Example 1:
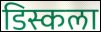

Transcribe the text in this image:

डिस्कला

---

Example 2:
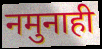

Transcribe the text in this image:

नमुनाही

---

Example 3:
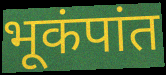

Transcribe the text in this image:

भूकंपांत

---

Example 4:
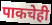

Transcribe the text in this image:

पाकचेही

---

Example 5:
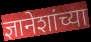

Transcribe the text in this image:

ज्ञानेशांच्या